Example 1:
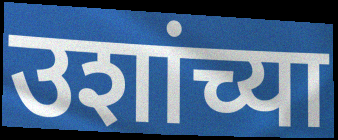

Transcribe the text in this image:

उशांच्या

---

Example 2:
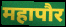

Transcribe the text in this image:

महापौर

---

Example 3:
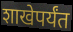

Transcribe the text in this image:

शाखेपर्यंत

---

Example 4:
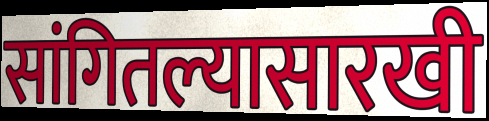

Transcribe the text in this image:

सांगितल्यासारखी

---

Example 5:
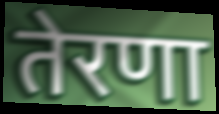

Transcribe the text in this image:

तेरणा